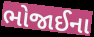
ભોજાઈના